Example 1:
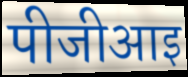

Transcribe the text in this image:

पीजीआइ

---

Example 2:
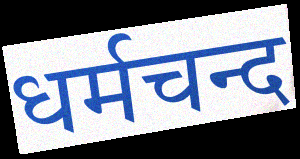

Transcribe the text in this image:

धर्मचन्द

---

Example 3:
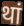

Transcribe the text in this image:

थां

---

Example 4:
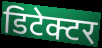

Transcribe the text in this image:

डिटेक्टर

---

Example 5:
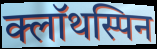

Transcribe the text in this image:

क्लॉथस्पिन